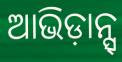
ଆଭିଡ଼ାନ୍ସ୍